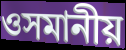
ওসমানীয়